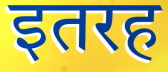
इतरह